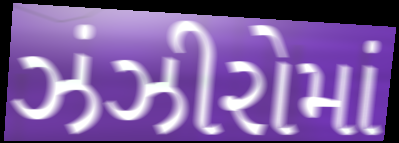
ઝંઝીરોમાં